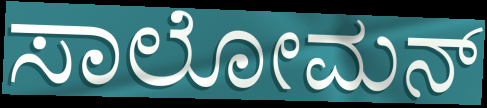
ಸಾಲೋಮನ್